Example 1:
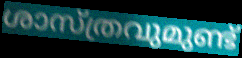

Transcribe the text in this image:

ശാസ്ത്രവുമുണ്ട്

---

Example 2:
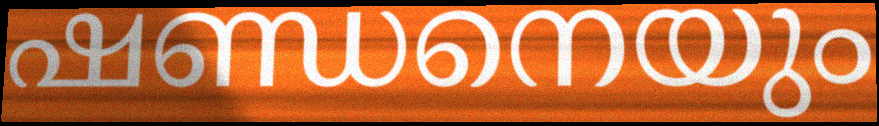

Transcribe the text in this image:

ഷണ്ഡനെയും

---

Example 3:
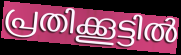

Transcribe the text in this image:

പ്രതിക്കൂട്ടിൽ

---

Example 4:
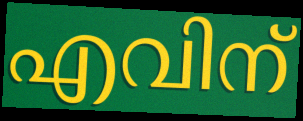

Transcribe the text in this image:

എവിന്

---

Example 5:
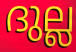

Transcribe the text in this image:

ദുല്ല